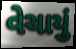
વેચાયું